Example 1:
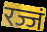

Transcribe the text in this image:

रज्जं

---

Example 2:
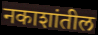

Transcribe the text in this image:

नकाशांतील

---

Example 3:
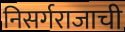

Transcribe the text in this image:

निसर्गराजाची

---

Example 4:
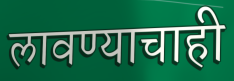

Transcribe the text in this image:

लावण्याचाही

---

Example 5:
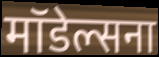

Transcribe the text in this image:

मॉडेल्सना